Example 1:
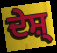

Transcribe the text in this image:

ਦੇਸ਼੍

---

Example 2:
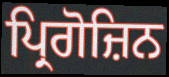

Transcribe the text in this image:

ਪ੍ਰਿਗੋਜ਼ਿਨ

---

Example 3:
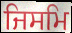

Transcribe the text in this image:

ਜਿਸਮਿ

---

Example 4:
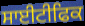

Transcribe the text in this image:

ਸਾਈਟੀਫਿਕ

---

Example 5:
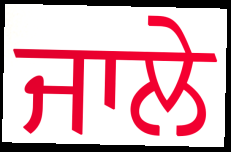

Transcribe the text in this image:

ਜਾਲੇ